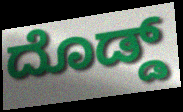
ದೊಡ್ಡ್